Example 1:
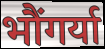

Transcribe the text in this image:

भौंगर्या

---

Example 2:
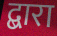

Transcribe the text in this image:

द्बारा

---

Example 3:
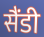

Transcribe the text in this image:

सैंडी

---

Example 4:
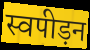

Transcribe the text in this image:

स्वपीड़न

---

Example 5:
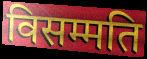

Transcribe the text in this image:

विसम्मति